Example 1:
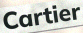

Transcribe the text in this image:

Cartier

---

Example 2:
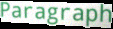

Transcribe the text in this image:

Paragraph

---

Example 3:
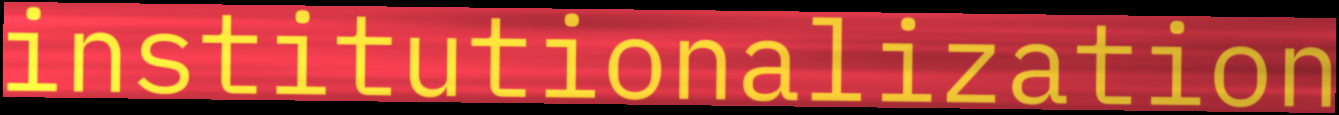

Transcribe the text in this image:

institutionalization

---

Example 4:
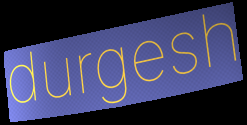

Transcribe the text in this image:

durgesh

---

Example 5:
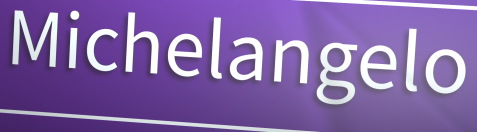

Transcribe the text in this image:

Michelangelo